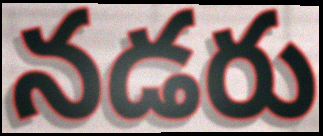
నడరు